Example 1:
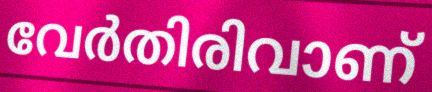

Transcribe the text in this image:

വേർതിരിവാണ്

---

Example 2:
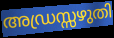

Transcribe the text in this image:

അഡ്രസ്സഴുതി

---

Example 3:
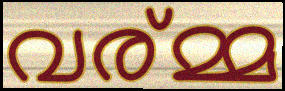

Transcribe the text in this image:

വര്മ്മ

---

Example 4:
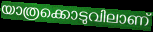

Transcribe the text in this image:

യാത്രക്കൊടുവിലാണ്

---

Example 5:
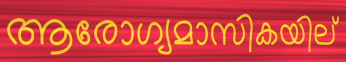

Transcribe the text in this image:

ആരോഗ്യമാസികയില്